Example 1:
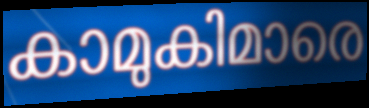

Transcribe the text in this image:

കാമുകിമാരെ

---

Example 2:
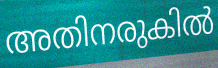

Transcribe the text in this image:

അതിനരുകിൽ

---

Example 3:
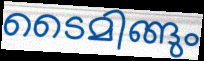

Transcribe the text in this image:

ടൈമിങ്ങും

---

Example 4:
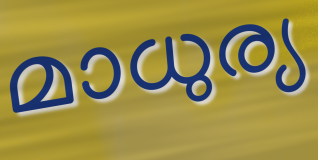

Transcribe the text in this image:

മാധുര്യ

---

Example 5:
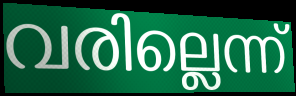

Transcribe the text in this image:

വരില്ലെന്ന്